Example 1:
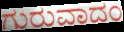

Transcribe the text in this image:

ಗುರುವಾದಂ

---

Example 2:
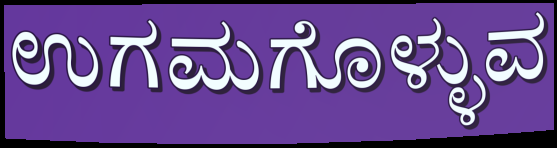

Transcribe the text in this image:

ಉಗಮಗೊಳ್ಳುವ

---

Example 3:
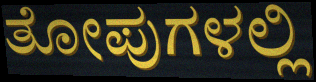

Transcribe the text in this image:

ತೋಪುಗಳಲ್ಲಿ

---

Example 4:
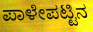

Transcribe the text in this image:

ಪಾಳೇಪಟ್ಟಿನ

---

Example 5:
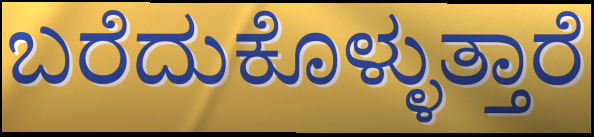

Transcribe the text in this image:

ಬರೆದುಕೊಳ್ಳುತ್ತಾರೆ